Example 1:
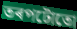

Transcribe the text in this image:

তৰপটোতো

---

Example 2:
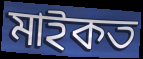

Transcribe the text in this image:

মাইকত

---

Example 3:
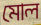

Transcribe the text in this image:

মোল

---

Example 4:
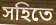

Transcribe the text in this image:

সহিতে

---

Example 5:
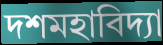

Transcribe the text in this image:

দশমহাবিদ্যা